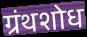
ग्रंथशोध